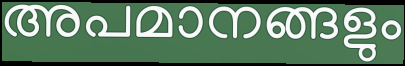
അപമാനങ്ങളും